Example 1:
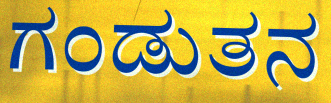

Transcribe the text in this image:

ಗಂಡುತನ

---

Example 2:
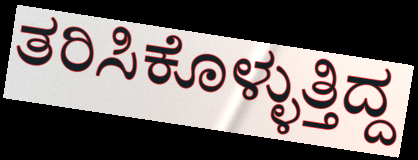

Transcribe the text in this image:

ತರಿಸಿಕೊಳ್ಳುತ್ತಿದ್ದ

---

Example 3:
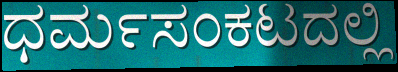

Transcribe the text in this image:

ಧರ್ಮಸಂಕಟದಲ್ಲಿ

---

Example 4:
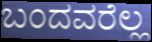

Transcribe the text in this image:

ಬಂದವರೆಲ್ಲ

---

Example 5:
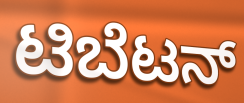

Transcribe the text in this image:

ಟಿಬೆಟನ್